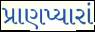
પ્રાણપ્યારાં